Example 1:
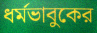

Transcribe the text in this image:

ধর্মভাবুকের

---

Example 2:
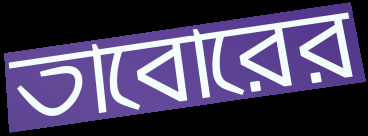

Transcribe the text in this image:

তাবোরের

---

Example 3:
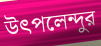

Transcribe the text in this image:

উৎপলেন্দুর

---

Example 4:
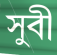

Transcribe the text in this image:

সুবী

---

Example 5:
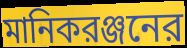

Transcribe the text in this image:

মানিকরঞ্জনের